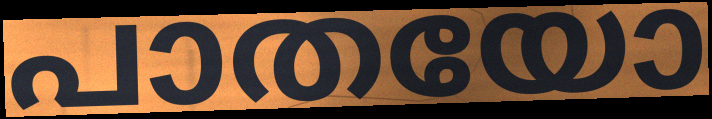
പാതയോ